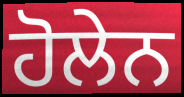
ਹੋਲੇਨ